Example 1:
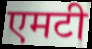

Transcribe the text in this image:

एमटी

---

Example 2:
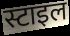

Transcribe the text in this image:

स्टाइल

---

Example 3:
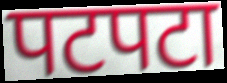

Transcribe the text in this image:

पटपटा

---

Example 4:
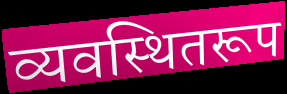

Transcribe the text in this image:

व्यवस्थितरूप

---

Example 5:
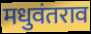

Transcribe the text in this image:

मधुवंतराव